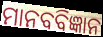
ମାନବବିଜ୍ଞାନ